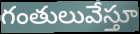
గంతులువేస్తూ